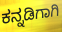
ಕನ್ನಡಿಗಾಗಿ